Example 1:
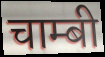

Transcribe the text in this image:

चाम्बी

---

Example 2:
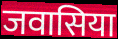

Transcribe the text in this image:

जवासिया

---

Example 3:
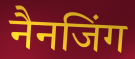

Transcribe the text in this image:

नैनजिंग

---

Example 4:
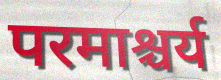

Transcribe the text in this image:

परमाश्चर्य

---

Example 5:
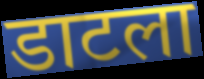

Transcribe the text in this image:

डाटला